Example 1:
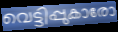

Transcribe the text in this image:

വെട്ടിപ്പുകാരോ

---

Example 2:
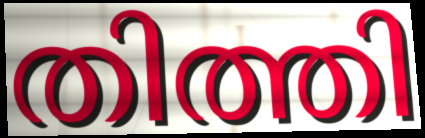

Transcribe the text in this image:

തിത്തി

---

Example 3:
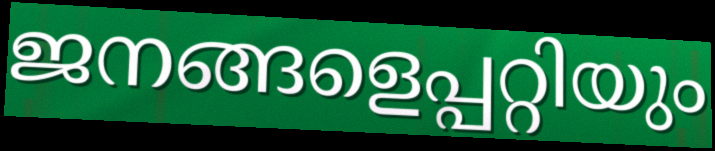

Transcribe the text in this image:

ജനങ്ങളെപ്പറ്റിയും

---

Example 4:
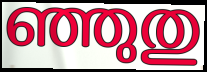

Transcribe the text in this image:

ഞ്ഞുതു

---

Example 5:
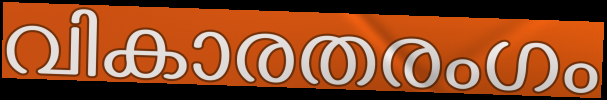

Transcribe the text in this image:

വികാരതരംഗം